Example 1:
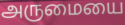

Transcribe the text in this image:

அருமையை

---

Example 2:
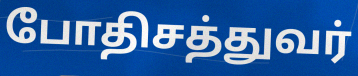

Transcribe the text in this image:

போதிசத்துவர்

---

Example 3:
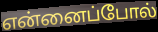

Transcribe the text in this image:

என்னைப்போல்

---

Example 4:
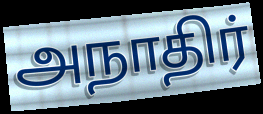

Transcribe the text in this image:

அநாதிர்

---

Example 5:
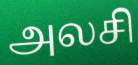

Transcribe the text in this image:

அலசி